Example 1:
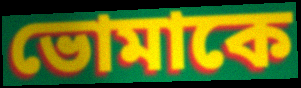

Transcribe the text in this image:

ভোমাকে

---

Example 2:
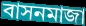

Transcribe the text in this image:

বাসনমাজা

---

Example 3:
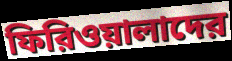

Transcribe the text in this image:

ফিরিওয়ালাদের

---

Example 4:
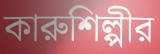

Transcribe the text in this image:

কারুশিল্পীর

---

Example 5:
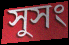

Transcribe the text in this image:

সুসং